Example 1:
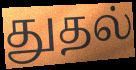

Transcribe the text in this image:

துதல்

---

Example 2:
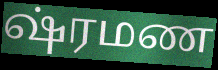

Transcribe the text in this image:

ஷ்ரமண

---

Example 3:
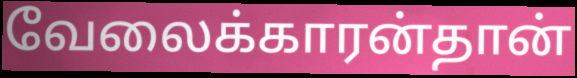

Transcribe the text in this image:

வேலைக்காரன்தான்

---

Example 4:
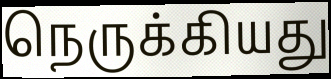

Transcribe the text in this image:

நெருக்கியது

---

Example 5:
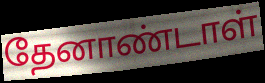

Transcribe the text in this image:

தேனாண்டாள்